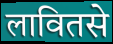
लावितसे